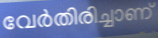
വേർതിരിച്ചാണ്